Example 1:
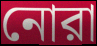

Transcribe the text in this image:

নোরা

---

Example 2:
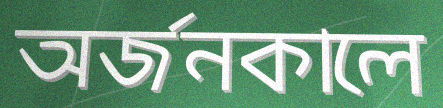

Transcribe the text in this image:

অর্জনকালে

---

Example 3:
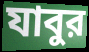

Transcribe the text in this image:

যাবুর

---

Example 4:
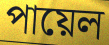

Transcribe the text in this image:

পায়েল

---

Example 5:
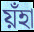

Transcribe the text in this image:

য়ঁহা